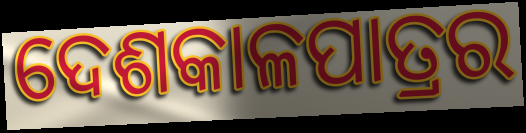
ଦେଶକାଳପାତ୍ରର